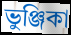
ভুঞ্জিকা